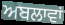
ਅਬਲਾਵਾਂ